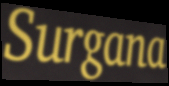
Surgana